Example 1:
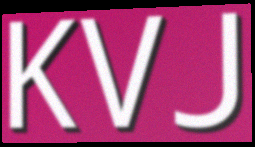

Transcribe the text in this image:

KVJ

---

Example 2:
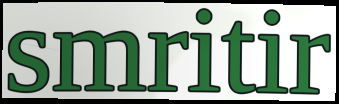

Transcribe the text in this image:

smritir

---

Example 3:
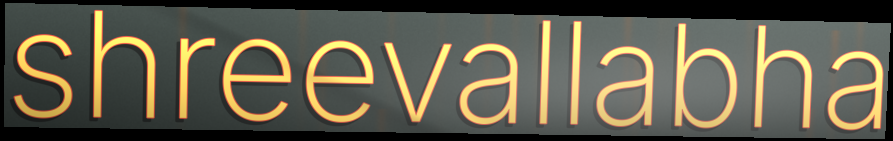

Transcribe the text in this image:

shreevallabha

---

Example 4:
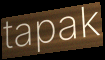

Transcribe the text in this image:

tapak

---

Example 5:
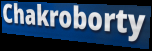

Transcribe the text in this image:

Chakroborty